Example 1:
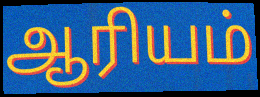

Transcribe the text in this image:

ஆரியம்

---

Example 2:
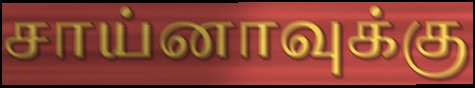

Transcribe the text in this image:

சாய்னாவுக்கு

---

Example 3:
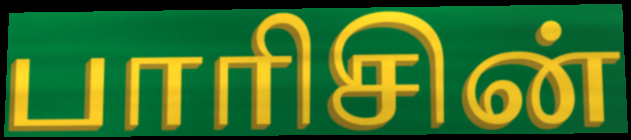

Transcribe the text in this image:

பாரிசின்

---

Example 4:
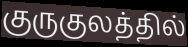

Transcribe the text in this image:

குருகுலத்தில்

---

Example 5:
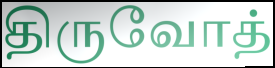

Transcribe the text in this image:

திருவோத்